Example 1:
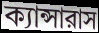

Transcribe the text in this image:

ক্যান্সারাস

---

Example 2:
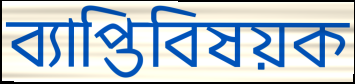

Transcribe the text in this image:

ব্যাপ্তিবিষয়ক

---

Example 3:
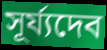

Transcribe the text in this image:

সূর্য্যদেব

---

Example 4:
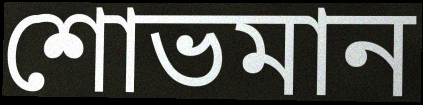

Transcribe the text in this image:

শোভমান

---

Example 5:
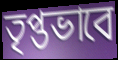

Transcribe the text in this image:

তৃপ্তভাবে